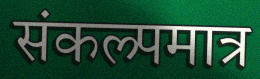
संकल्पमात्र